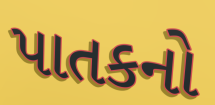
પાતકનો